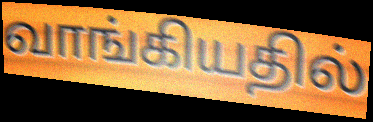
வாங்கியதில்